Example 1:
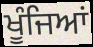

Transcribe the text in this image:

ਖੂੰਜਿਆਂ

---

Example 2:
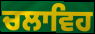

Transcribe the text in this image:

ਚਲਾਵਿਹ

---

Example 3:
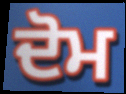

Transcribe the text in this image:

ਦੋਮ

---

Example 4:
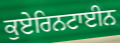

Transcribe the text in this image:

ਕੁਏਰਿਨਟਾਈਨ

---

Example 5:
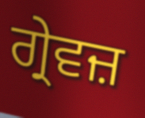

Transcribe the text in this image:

ਗ੍ਰੇਵਜ਼